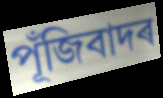
পূঁজিবাদৰ